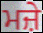
ਮਜ਼ੇ